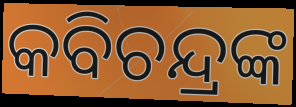
କବିଚନ୍ଦ୍ରଙ୍କ